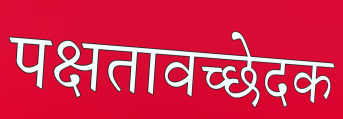
पक्षतावच्छेदक